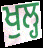
ਖੁਲ੍ਹ